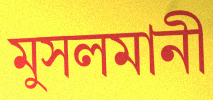
মুসলমানী